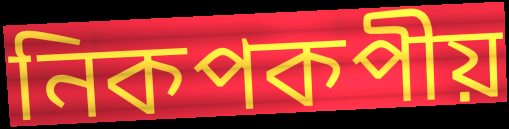
নিকপকপীয়